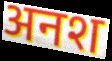
अनश